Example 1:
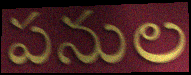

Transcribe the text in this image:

పనుల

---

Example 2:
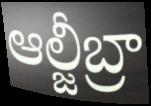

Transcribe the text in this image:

ఆల్జీబ్రా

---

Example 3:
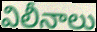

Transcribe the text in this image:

విలీనాలు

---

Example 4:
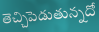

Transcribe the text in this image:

తెచ్చిపెడుతున్నదో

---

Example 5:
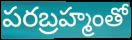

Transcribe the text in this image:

పరబ్రహ్మంతో